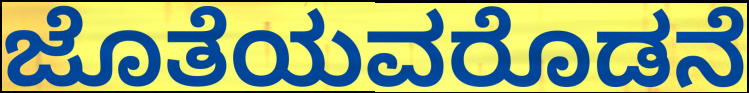
ಜೊತೆಯವರೊಡನೆ